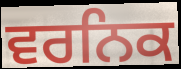
ਵਰਨਿਕ